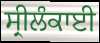
ਸ੍ਰੀਲੰਕਾਈ